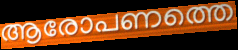
ആരോപണത്തെ